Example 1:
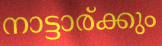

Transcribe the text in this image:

നാട്ടാര്ക്കും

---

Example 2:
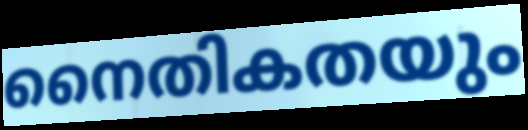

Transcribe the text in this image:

നൈതികതയും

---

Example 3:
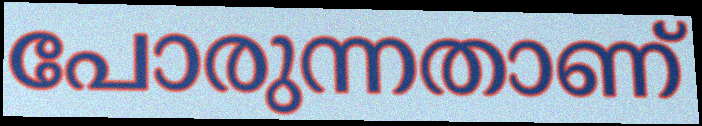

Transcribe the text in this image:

പോരുന്നതാണ്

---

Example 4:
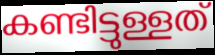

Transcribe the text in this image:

കണ്ടിട്ടുള്ളത്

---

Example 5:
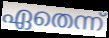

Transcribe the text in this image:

ഏതെന്ന്